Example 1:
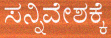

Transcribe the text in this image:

ಸನ್ನಿವೇಶಕ್ಕೆ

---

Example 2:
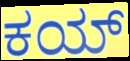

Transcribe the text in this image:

ಕಯ್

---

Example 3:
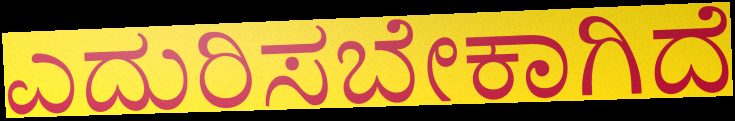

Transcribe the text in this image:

ಎದುರಿಸಬೇಕಾಗಿದೆ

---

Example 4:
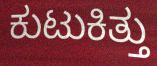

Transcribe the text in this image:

ಕುಟುಕಿತ್ತು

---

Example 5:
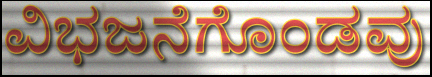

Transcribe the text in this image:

ವಿಭಜನೆಗೊಂಡವು